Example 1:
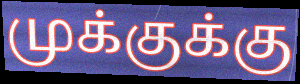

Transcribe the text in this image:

முக்குக்கு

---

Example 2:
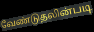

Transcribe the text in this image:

வேண்டுதலின்படி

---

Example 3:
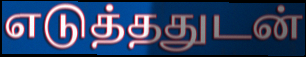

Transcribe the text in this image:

எடுத்ததுடன்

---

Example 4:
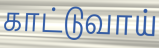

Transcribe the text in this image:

காட்டுவாய்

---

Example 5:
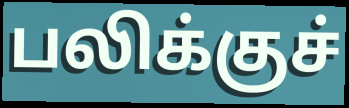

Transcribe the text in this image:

பலிக்குச்